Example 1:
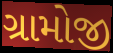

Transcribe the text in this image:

ગ્રામોજી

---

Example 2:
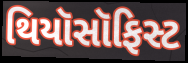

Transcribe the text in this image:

થિયૉસૉફિસ્ટ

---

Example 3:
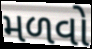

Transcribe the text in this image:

મળવો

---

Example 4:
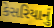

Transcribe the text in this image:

કેસરિયાનું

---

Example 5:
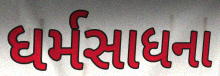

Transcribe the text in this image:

ધર્મસાધના